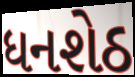
ધનશેઠ